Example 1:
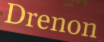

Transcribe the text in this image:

Drenon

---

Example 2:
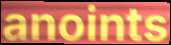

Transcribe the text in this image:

anoints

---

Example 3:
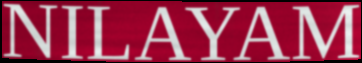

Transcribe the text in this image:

NILAYAM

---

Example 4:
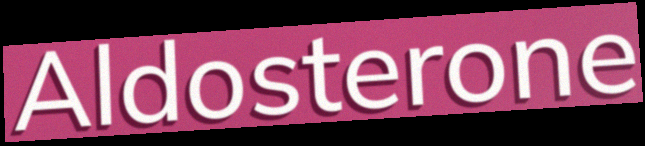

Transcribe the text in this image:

Aldosterone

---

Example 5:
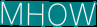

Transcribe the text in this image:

MHOW